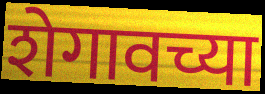
शेगावच्या